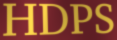
HDPS